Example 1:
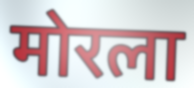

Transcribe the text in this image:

मोरला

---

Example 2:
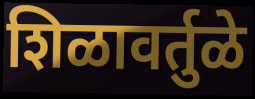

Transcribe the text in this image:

शिळावर्तुळे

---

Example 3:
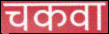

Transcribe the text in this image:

चकवा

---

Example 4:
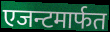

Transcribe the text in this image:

एजन्टमार्फत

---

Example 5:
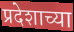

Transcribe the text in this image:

प्रदेशाच्या